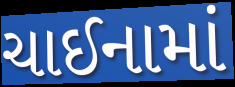
ચાઈનામાં